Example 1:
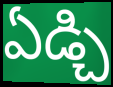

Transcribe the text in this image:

ఏడ్చి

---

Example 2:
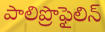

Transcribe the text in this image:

పాలిప్రొఫైలిన్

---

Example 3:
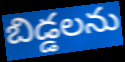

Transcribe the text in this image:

బిడ్డలను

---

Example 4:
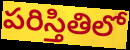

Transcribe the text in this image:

పరిస్తితిలో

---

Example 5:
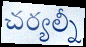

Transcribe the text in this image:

చర్యల్నీ